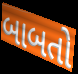
બાબતો